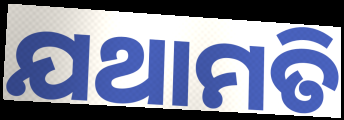
ଯଥାମତି